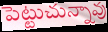
పెట్టుచున్నావు